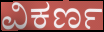
ವಿಕರ್ಣ